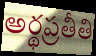
అర్థప్రతీతి